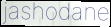
jashodane